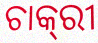
ଚାକ୍‌ରୀ